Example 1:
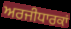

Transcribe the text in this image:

ਅਰਜੀਧਾਰਕਾਂ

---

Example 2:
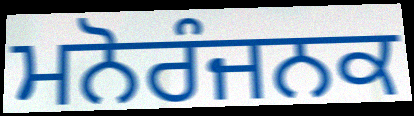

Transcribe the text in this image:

ਮਨੋਰੰਜਨਕ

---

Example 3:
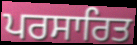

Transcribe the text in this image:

ਪਰਸਾਰਿਤ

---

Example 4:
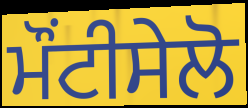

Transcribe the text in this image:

ਮੌਂਟੀਸੇਲੋ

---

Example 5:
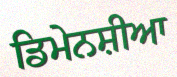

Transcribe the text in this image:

ਡਿਮੇਨਸ਼ੀਆ